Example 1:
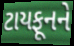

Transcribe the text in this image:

ટાયફૂનને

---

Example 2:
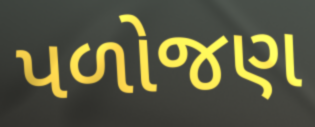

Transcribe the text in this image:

પળોજણ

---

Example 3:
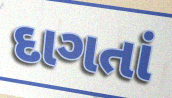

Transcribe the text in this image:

દાગતાં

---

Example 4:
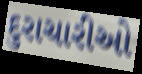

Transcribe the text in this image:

દુરાચારીઓ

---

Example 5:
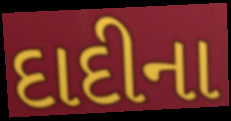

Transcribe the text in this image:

દાદીના